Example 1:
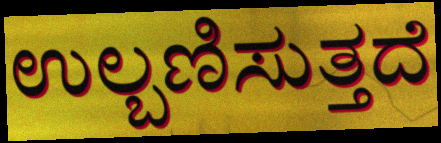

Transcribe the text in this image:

ಉಲ್ಬಣಿಸುತ್ತದೆ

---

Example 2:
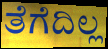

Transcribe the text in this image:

ತೆಗೆದಿಲ್ಲ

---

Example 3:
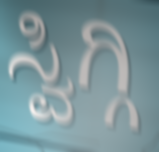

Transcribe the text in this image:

ಸ್ವಿಗ್ಗಿ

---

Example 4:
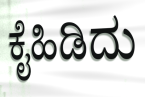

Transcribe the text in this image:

ಕೈಹಿಡಿದು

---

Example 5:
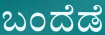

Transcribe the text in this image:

ಬಂದೆಡೆ